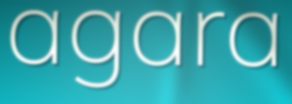
agara